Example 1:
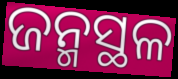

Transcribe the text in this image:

ଜନ୍ମସ୍ଥଳ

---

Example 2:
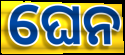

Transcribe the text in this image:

ଘେନ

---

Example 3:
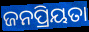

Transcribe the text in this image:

ଜନପ୍ରିୟତା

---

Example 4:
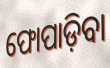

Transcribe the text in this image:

ଫୋପାଡ଼ିବା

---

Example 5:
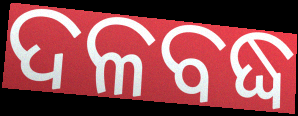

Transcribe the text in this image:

ଦଳବଦ୍ଧ